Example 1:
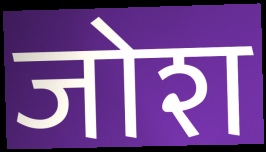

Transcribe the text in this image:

जोश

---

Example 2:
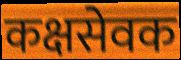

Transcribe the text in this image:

कक्षसेवक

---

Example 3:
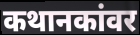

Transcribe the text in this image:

कथानकांवर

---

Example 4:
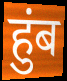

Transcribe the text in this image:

हुंब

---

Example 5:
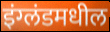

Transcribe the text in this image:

इंग्‍लंडमधील